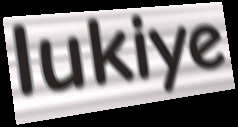
lukiye